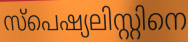
സ്പെഷ്യലിസ്റ്റിനെ